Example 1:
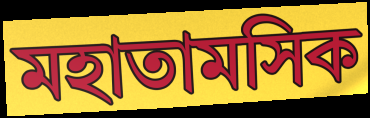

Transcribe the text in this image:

মহাতামসিক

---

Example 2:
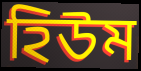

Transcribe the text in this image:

হিউম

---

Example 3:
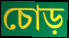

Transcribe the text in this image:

চোড়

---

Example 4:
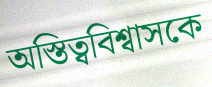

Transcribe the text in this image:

অস্তিত্ববিশ্বাসকে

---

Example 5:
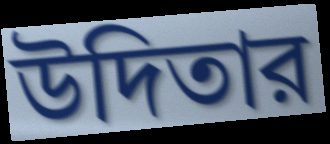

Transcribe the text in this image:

উদিতার